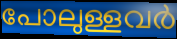
പോലുള്ളവർ